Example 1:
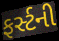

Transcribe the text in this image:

ફર્સ્ટની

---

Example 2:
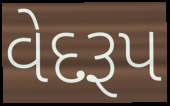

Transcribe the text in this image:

વેદરૂપ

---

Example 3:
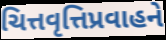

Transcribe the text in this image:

ચિત્તવૃત્તિપ્રવાહને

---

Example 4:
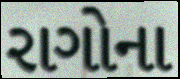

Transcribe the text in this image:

રાગોના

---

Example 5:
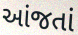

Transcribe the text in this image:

આંજતાં